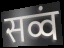
सव्वं